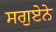
ਸਗੁਏਨੇ